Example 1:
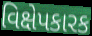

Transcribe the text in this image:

વિક્ષેપકારક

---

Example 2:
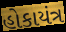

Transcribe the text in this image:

હોકાયંત્ર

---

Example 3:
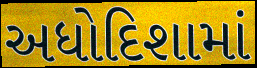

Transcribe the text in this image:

અધોદિશામાં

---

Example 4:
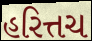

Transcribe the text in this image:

હરિત્તચ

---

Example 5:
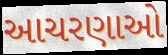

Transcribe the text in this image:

આચરણાઓ